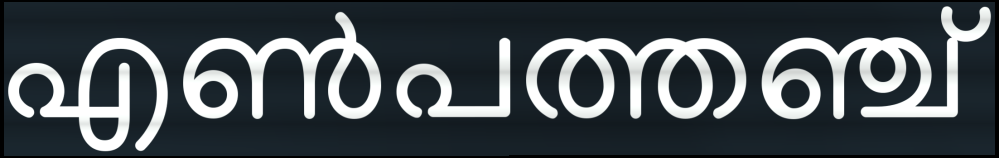
എൺപത്തഞ്ച്